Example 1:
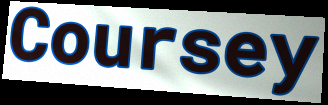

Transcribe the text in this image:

Coursey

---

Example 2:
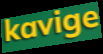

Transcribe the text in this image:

kavige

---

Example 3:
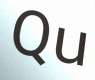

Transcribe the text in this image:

Qu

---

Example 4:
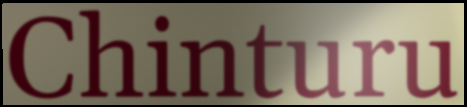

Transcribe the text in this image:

Chinturu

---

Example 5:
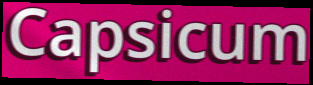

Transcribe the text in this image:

Capsicum